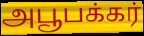
அபூபக்கர்